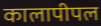
कालापीपल